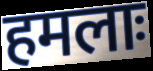
हमलाः